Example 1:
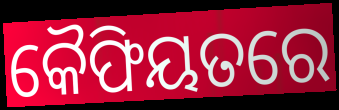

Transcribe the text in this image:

କୈଫିୟତରେ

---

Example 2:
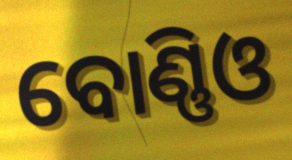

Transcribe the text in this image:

ବୋଣ୍ଣିଓ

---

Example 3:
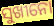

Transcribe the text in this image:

ସୁଖୀନୋ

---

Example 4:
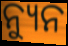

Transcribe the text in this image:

ନ୍ୟୁନ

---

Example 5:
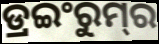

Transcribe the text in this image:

ଡ୍ରଇଂରୁମ୍‌ର